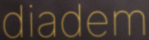
diadem